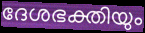
ദേശഭക്തിയും